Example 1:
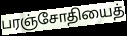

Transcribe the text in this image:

பரஞ்சோதியைத்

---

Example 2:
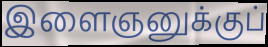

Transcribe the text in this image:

இளைஞனுக்குப்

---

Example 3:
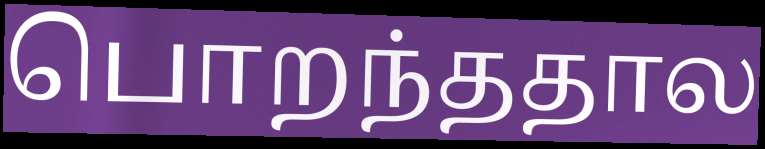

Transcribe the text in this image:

பொறந்ததால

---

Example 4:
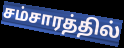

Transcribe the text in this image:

சம்சாரத்தில்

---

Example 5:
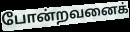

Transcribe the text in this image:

போன்றவனைக்